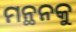
ମନ୍ଥନକୁ